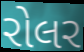
રોલર